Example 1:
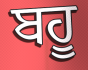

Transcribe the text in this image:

ਬਹੂ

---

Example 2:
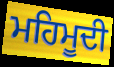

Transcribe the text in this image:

ਮਹਿਮੂਦੀ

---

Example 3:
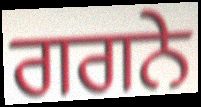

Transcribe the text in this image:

ਗਗਨੇ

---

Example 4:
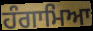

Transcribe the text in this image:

ਹੰਗਾਮਿਆ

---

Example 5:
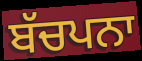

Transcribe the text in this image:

ਬੱਚਪਨਾ